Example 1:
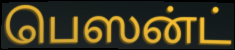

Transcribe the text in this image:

பெஸன்ட்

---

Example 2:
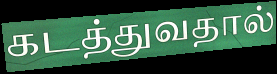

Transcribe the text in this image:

கடத்துவதால்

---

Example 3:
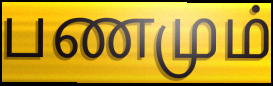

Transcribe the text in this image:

பணமும்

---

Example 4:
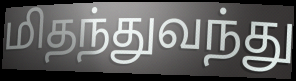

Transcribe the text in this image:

மிதந்துவந்து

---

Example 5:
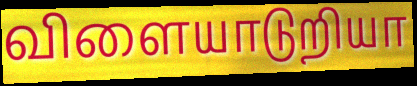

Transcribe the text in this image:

விளையாடுறியா